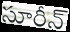
సూరీన్